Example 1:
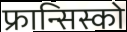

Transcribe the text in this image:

फ्रान्सिस्को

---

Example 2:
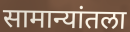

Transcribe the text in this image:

सामान्यांतला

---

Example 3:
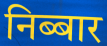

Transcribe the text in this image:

निब्बार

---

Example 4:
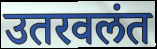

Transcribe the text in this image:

उतरवलंत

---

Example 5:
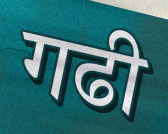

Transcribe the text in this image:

गढी